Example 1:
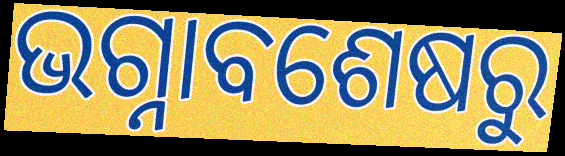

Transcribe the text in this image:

ଭଗ୍ନାବଶେଷରୁ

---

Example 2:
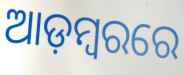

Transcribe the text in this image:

ଆଡ଼ମ୍ୱରରେ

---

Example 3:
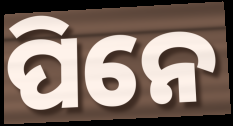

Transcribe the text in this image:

ପିନେ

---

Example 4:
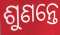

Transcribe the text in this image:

ଶୁଣନ୍ତେ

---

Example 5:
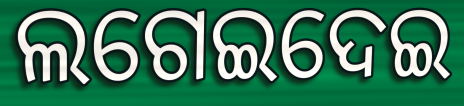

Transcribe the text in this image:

ଲଗେଇଦେଇ